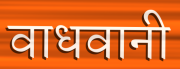
वाधवानी